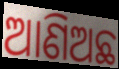
ଆଣିଅଛ